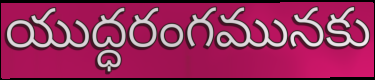
యుద్ధరంగమునకు